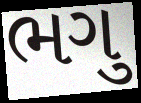
ભગુ